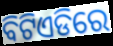
ବିଟିଏଡିରେ